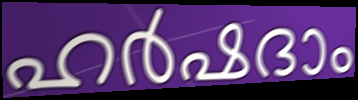
ഹർഷദാം